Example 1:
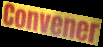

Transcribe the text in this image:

Convener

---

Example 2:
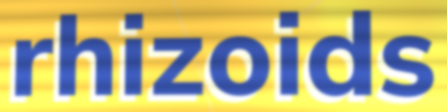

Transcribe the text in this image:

rhizoids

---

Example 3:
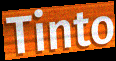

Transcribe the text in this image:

Tinto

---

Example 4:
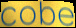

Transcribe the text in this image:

cobe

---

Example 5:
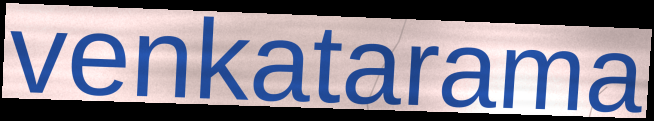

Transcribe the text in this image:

venkatarama